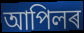
আপিলৰ